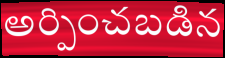
అర్పించబడిన